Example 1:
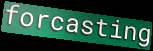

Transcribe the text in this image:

forcasting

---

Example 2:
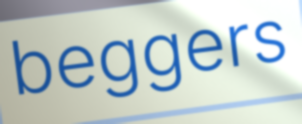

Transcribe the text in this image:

beggers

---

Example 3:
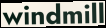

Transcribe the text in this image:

windmill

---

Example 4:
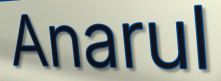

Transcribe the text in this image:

Anarul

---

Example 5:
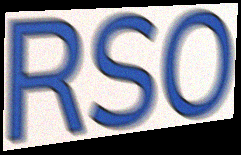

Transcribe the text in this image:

RSO